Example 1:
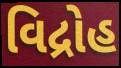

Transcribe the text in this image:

વિદ્રોહ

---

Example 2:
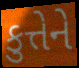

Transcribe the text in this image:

કુત્તેને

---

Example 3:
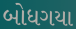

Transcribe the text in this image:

બોધગયા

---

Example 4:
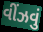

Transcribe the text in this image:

વીંઝવું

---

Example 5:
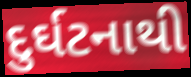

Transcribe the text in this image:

દુર્ઘટનાથી